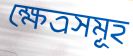
ক্ষেত্ৰসমূহ